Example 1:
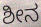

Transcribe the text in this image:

ಶೀನ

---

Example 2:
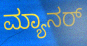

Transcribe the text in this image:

ಮ್ಯಾನರ್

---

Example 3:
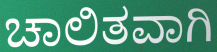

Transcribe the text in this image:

ಚಾಲಿತವಾಗಿ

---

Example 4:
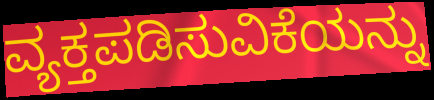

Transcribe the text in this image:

ವ್ಯಕ್ತಪಡಿಸುವಿಕೆಯನ್ನು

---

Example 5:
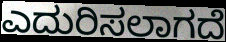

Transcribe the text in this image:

ಎದುರಿಸಲಾಗದೆ